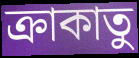
ক্রাকাতু